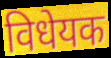
विधेयक